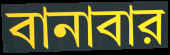
বানাবার